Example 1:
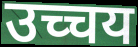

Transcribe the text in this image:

उच्चय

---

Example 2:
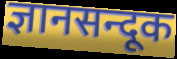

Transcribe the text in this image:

ज्ञानसन्दूक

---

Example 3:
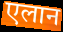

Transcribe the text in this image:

एलान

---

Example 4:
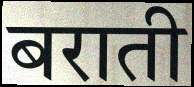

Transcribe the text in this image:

बराती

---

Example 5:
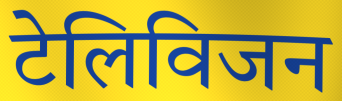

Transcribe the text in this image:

टेलिविजन